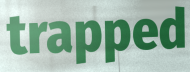
trapped